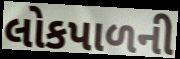
લોકપાળની